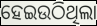
ହେଇଉଠିଥିଲା